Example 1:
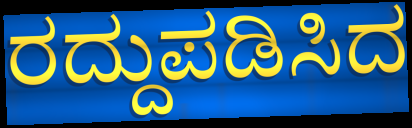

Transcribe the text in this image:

ರದ್ದುಪಡಿಸಿದ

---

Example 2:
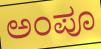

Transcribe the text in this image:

ಅಂಪೂ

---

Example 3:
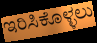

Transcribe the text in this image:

ಇರಿಸಿಕೊಳ್ಳಲು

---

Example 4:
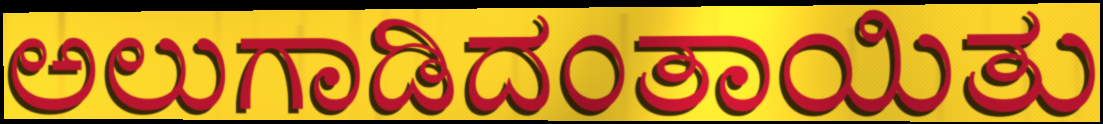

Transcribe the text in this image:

ಅಲುಗಾಡಿದಂತಾಯಿತು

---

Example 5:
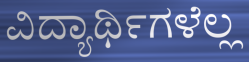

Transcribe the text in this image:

ವಿದ್ಯಾರ್ಥಿಗಳೆಲ್ಲ